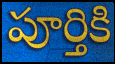
పూర్తికి